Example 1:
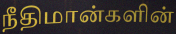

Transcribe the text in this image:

நீதிமான்களின்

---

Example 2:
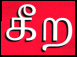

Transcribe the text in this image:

கீற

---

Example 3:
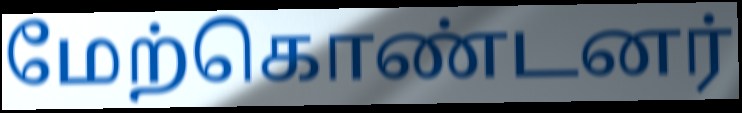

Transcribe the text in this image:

மேற்கொண்டனர்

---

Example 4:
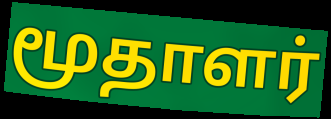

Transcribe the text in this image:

மூதாளர்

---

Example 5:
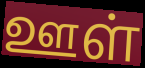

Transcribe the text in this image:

ஊள்